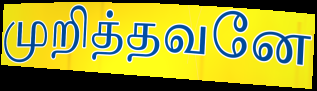
முறித்தவனே